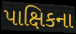
પાક્ષિકના